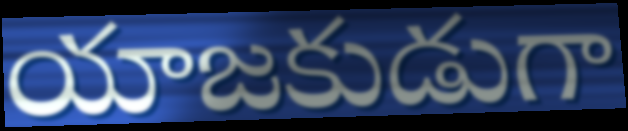
యాజకుడుగా